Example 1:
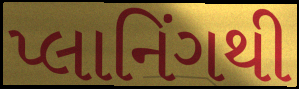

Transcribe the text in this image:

પ્લાનિંગથી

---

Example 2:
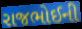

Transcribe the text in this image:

રાજભોઈની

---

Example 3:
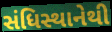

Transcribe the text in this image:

સંધિસ્થાનેથી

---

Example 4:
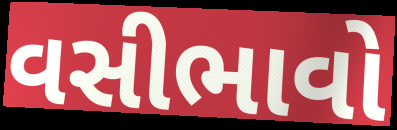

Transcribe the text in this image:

વસીભાવો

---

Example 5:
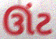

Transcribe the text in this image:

ઊંટ